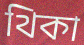
থিকা